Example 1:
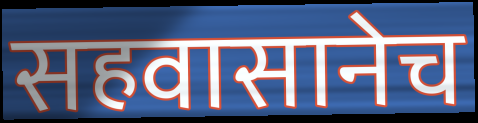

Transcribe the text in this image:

सहवासानेच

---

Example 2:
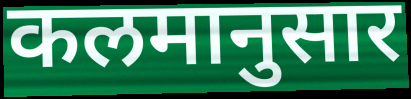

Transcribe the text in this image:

कलमानुसार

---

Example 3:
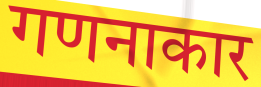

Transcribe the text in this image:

गणनाकार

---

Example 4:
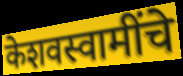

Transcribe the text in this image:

केशवस्वामींचे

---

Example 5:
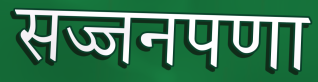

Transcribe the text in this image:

सज्जनपणा